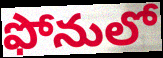
ఫోనులో